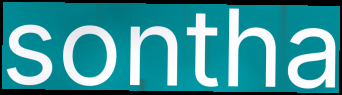
sontha